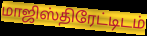
மாஜிஸ்திரேட்டிடம்